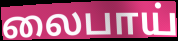
லைபாய்